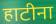
हाटीना